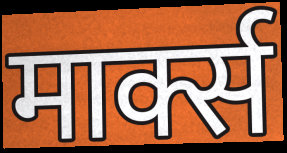
मार्क्स